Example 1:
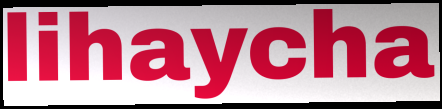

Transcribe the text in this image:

lihaycha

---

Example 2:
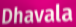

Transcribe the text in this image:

Dhavala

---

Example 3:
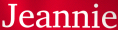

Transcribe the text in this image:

Jeannie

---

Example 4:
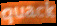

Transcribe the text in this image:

quack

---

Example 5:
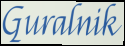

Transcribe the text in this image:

Guralnik